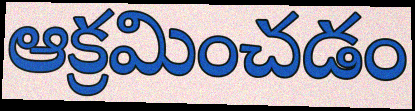
ఆక్రమించడం